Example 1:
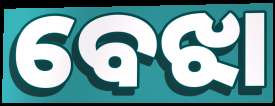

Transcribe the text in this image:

ବେଝା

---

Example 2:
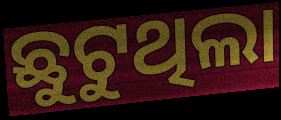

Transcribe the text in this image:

ଛୁଟୁଥିଲା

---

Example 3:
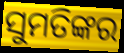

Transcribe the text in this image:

ସୁମତିଙ୍କର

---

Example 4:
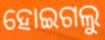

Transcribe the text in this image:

ହୋଇଗଲୁ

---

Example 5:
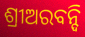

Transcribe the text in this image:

ଶ୍ରୀଅରବନ୍ଦି